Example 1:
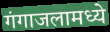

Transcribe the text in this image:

गंगाजलामध्ये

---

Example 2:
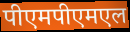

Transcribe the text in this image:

पीएमपीएमएल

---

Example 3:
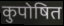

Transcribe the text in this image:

कुपोषित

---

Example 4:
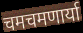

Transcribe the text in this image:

चमचमणार्या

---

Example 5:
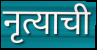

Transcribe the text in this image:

नृत्याची